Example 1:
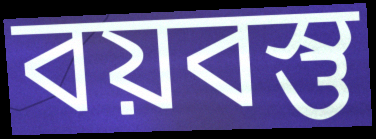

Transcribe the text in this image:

বয়বস্তু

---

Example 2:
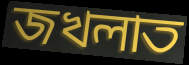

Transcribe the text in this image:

জখলাত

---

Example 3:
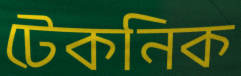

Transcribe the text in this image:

টেকনিক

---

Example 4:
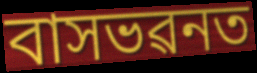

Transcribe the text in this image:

বাসভৱনত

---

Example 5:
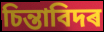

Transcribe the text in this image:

চিন্তাবিদৰ